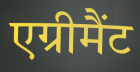
एग्रीमैंट